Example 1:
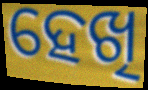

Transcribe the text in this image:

ହେଖି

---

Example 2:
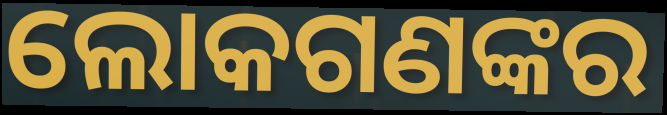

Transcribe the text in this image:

ଲୋକଗଣଙ୍କର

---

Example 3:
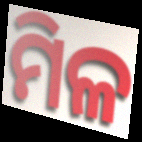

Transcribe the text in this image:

ମିଳ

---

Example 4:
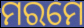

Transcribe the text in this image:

ମରମେ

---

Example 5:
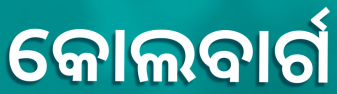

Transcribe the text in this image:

କୋଲବାର୍ଗ